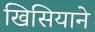
खिसियाने